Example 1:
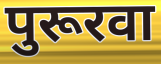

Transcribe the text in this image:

पुरूरवा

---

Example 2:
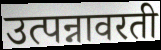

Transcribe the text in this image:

उत्पन्नावरती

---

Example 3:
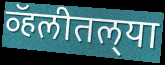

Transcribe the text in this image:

व्हॅलीतल्या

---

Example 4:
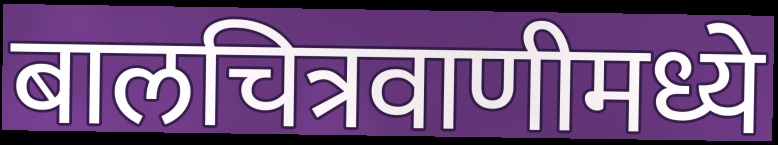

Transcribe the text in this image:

बालचित्रवाणीमध्ये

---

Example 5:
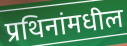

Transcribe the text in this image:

प्रथिनांमधील